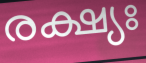
രക്ഷ്യഃ